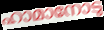
ഹാമാനോടു